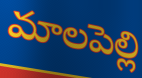
మాలపెల్లి